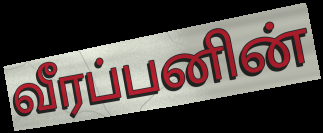
வீரப்பனின்